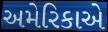
અમેરિકાએ